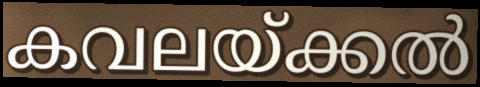
കവലയ്ക്കൽ